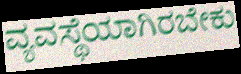
ವ್ಯವಸ್ಥೆಯಾಗಿರಬೇಕು